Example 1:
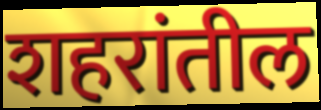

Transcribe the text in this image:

शहरांतील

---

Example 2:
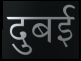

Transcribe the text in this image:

दुबई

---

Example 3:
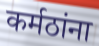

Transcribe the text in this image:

कर्मठांना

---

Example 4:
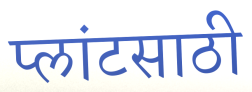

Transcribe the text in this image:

प्लांटसाठी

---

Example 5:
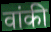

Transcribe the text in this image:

वांकी